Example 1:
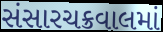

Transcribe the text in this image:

સંસારચક્રવાલમાં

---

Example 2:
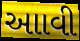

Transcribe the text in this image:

આાવી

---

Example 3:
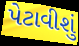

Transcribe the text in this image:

પેટાવીશું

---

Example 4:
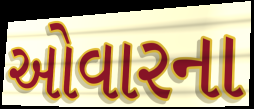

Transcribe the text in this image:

ઓવારના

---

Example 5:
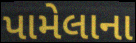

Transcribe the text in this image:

પામેલાના